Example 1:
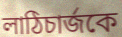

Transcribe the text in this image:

লাঠিচার্জকে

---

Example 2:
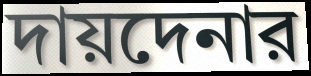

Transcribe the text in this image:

দায়দেনার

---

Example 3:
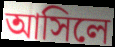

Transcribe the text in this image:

আসিলে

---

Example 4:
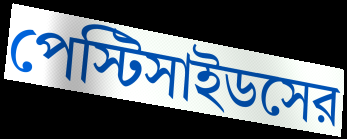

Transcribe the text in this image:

পেস্টিসাইডসের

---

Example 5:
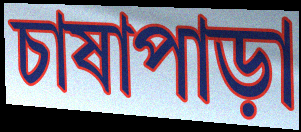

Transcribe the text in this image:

চাষাপাড়া